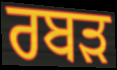
ਰਬੜ